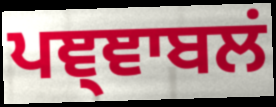
ਪਞ੍ਞਾਬਲਂ